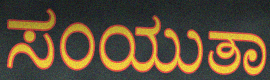
ಸಂಯುತಾ